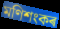
মণিশংকৰ